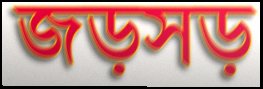
জড়সড়